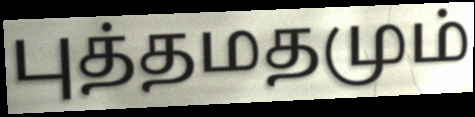
புத்தமதமும்